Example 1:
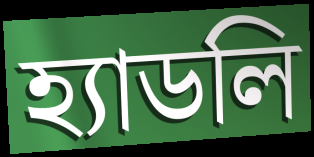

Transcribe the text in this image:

হ্যাডলি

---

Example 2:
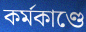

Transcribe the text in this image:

কর্মকাণ্ডে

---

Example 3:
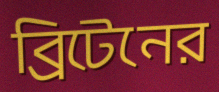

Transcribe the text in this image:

ব্রিটেনের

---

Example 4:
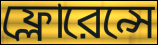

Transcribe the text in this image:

ফ্লোরেন্সে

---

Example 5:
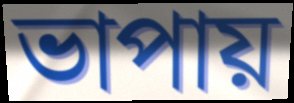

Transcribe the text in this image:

ভাপায়